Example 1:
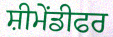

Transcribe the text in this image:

ਸ਼ੀਮੇਂਡੀਫਰ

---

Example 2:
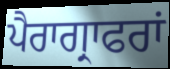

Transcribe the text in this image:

ਪੈਰਾਗ੍ਰਾਫਰਾਂ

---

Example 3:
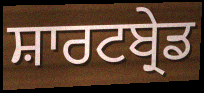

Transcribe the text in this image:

ਸ਼ਾਰਟਬ੍ਰੇਡ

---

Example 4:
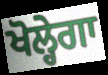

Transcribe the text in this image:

ਖੋਲ੍ਹੇਗਾ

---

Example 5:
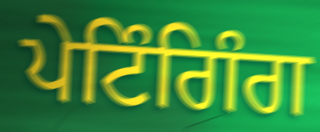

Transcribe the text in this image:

ਪੇਟਿੰਗਿੰਗ